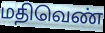
மதிவெண்